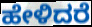
ಹೇಳಿದರೆ